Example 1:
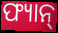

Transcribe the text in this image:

ଫ୍ୟାନ୍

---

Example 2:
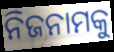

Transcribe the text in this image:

ନିଜନାମକୁ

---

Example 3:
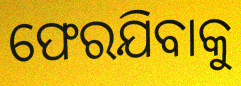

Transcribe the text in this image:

ଫେରଯିବାକୁ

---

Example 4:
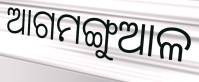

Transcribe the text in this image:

ଆଗମଙ୍ଗୁଆଳ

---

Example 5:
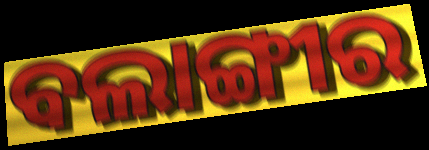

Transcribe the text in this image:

ବଲାଙ୍ଗୀର